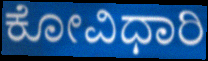
ಕೋವಿಧಾರಿ